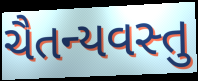
ચૈતન્યવસ્તુ